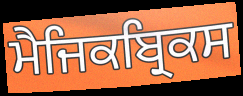
ਮੈਜਿਕਬ੍ਰਿਕਸ